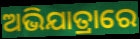
ଅଭିଯାତ୍ରାରେ